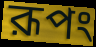
রূপং